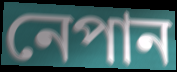
নেপান